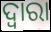
ଦ୍ଵାରା